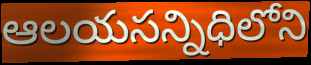
ఆలయసన్నిధిలోని